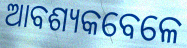
ଆବଶ୍ୟକବେଳେ